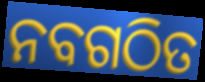
ନବଗଠିତ